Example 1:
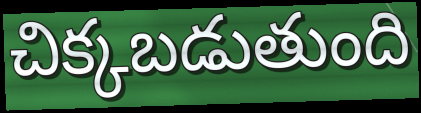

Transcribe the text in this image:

చిక్కబడుతుంది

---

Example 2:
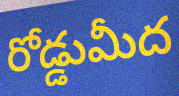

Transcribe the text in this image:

రోడ్డుమీద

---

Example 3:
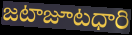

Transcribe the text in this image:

జటాజూటధారి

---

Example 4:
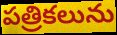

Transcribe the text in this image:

పత్రికలును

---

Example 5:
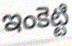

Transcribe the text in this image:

ఇంకెట్టి